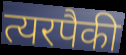
त्यरपैकी